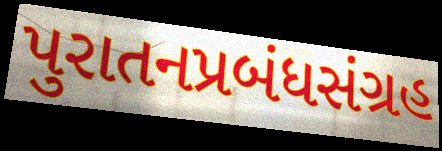
પુરાતનપ્રબંધસંગ્રહ